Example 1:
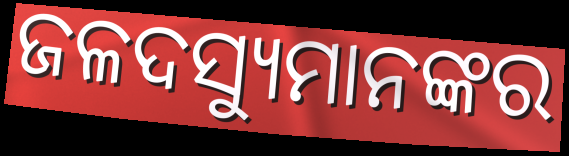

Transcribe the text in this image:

ଜଳଦସ୍ୟୁମାନଙ୍କର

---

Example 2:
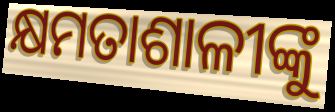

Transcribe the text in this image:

କ୍ଷମତାଶାଳୀଙ୍କୁ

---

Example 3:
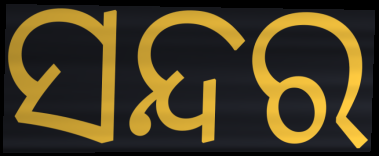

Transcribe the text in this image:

ସନ୍ଦର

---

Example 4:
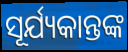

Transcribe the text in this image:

ସୂର୍ଯ୍ୟକାନ୍ତଙ୍କ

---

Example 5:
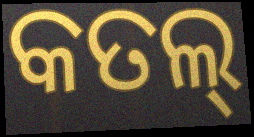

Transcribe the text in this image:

କତଲ୍